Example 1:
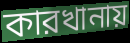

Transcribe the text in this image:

কারখানায়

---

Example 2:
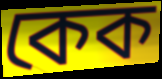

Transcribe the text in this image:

কেক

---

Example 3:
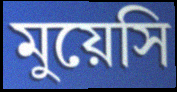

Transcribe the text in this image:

মুয়েসি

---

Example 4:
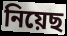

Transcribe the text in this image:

নিয়েছ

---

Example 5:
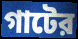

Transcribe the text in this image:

গাটের